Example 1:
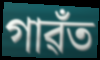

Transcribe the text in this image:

গাৱঁত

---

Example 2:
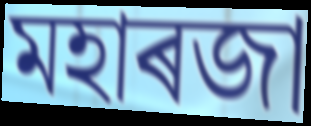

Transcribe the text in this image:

মহাৰজা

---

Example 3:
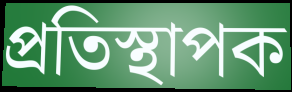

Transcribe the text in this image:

প্ৰতিস্থাপক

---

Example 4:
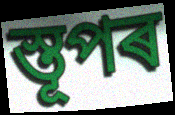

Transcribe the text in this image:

স্তূপৰ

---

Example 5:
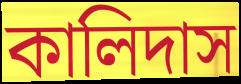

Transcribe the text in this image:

কালিদাস